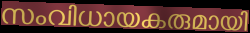
സംവിധായകരുമായി